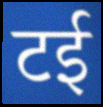
टई